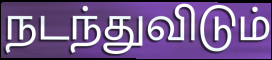
நடந்துவிடும்